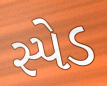
સ્પેડ